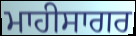
ਮਾਹੀਸਾਗਰ